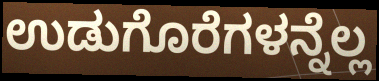
ಉಡುಗೊರೆಗಳನ್ನೆಲ್ಲ